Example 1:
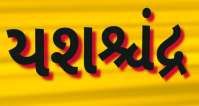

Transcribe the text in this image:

યશશ્ચંદ્ર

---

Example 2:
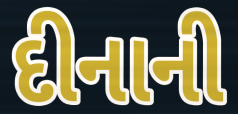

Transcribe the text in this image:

દીનાની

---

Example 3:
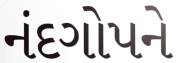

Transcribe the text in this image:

નંદગોપને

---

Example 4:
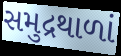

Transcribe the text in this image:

સમુદ્રથાળાં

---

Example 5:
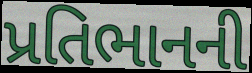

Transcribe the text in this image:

પ્રતિભાનની